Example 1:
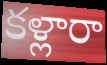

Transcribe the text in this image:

కళ్లారా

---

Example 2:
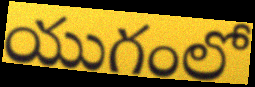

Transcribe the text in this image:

యుగంలో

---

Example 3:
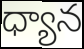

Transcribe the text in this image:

ధ్యాన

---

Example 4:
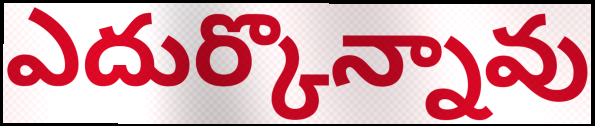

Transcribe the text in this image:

ఎదుర్కొన్నావు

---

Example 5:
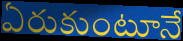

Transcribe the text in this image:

ఏరుకుంటూనే